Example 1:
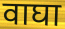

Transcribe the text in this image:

वाघा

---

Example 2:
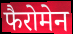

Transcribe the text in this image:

फैरोमेन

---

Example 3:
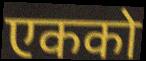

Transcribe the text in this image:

एकको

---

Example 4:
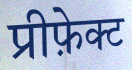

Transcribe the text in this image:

प्रीफ़ेक्ट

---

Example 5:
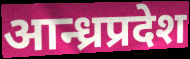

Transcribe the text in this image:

आन्ध्रप्रदेश